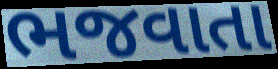
ભજવાતા